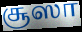
சூஸா